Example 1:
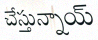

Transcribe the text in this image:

చేస్తున్నాయ్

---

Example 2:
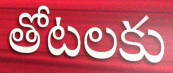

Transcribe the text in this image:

తోటలకు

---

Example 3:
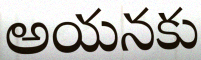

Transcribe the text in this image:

అయనకు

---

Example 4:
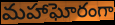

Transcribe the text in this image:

మహాఘోరంగా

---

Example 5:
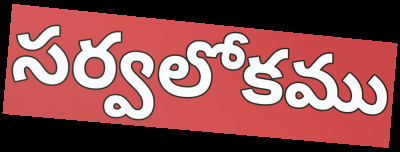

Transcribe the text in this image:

సర్వలోకము